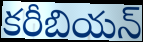
కరీబియన్